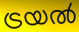
ട്രയൽ